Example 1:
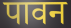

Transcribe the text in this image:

पावन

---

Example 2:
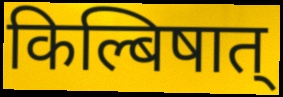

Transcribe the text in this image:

किल्बिषात्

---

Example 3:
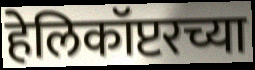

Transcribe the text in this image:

हेलिकॉप्टरच्या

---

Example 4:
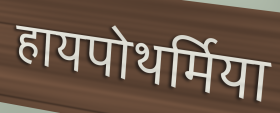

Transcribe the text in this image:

हायपोथर्मिया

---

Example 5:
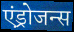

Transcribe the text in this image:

एंड्रोजन्स